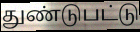
துண்டுபட்டு